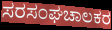
ಸರಸಂಘಚಾಲಕರ